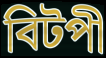
বিটপী